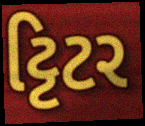
ટ્ટિટર